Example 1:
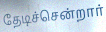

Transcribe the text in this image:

தேடிச்சென்றார்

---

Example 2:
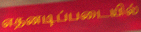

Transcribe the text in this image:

எதனடிப்படையில்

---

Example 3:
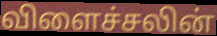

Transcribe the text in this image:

விளைச்சலின்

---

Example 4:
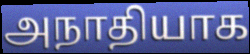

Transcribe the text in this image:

அநாதியாக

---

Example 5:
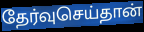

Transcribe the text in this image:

தேர்வுசெய்தான்